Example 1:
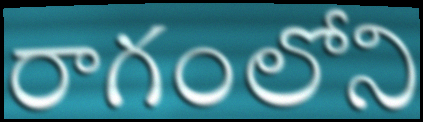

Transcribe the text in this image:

రాగంలోని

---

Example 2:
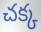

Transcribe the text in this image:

చక్క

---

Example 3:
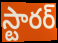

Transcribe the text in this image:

స్టారర్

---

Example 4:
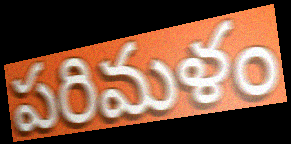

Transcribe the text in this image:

పరిమళం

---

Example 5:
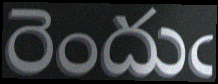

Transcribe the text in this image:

రెందుఁ